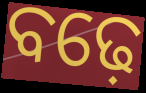
ବଢ଼େ